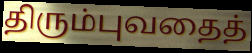
திரும்புவதைத்